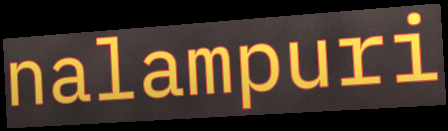
nalampuri